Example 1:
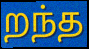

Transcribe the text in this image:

றந்த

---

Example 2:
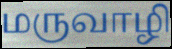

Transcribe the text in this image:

மருவாழி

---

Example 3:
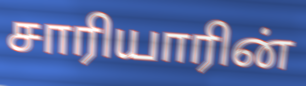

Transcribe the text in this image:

சாரியாரின்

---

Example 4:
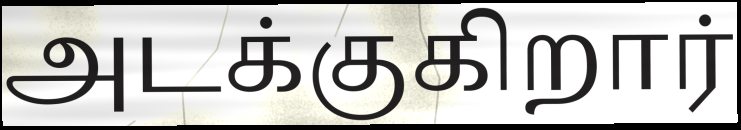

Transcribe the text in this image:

அடக்குகிறார்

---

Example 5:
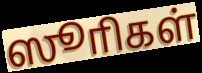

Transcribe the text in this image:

ஸூரிகள்